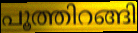
പൂത്തിറങ്ങി